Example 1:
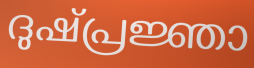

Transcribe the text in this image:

ദുഷ്പ്രജ്ഞാ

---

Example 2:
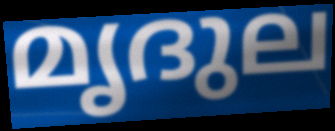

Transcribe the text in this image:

മൃദുല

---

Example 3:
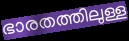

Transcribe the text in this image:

ഭാരതത്തിലുള്ള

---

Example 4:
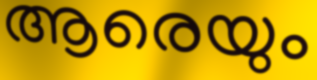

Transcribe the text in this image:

ആരെയും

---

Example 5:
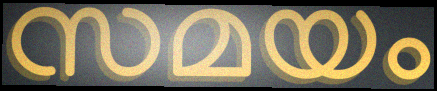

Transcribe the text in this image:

സമയം